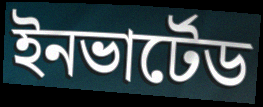
ইনভার্টেড